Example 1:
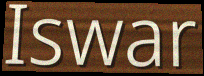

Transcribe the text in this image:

Iswar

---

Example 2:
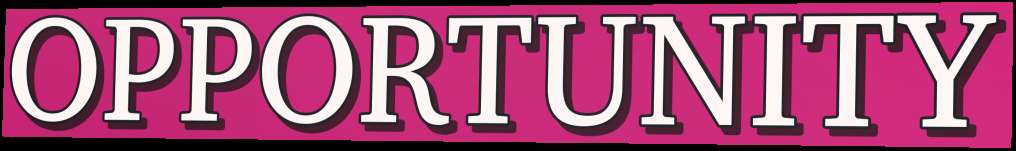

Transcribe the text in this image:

OPPORTUNITY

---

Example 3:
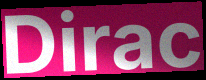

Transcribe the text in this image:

Dirac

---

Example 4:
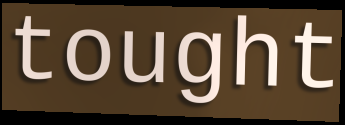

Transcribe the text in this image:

tought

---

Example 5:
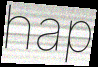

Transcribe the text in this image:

hap